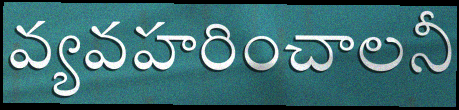
వ్యవహరించాలనీ